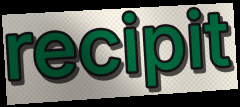
recipit